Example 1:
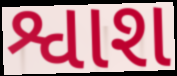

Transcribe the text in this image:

શ્વાશ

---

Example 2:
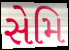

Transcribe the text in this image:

સેમિ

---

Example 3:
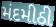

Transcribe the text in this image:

મંદમીઠી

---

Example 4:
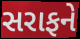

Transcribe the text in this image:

સરાફને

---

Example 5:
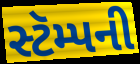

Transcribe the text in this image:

સ્ટૅમ્પની